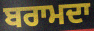
ਬਰਾਮਦਾ